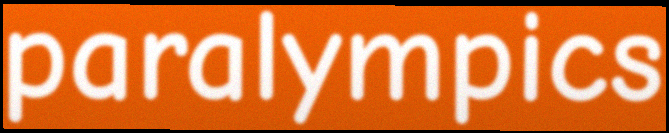
paralympics